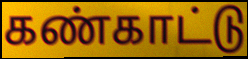
கண்காட்டு